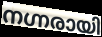
നഗ്നരായി